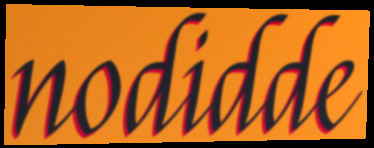
nodidde